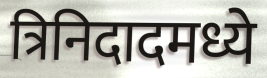
त्रिनिदादमध्ये